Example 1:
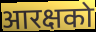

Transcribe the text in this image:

आरक्षको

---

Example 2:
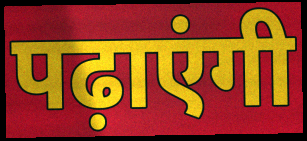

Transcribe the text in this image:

पढ़ाएंगी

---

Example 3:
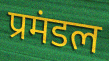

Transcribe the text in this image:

प्रमंडल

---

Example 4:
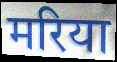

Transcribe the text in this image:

मरिया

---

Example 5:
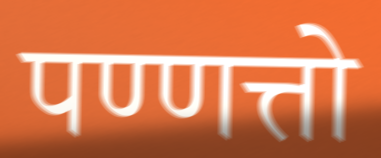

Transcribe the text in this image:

पण्णत्तो